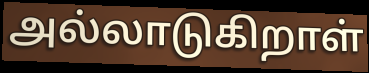
அல்லாடுகிறாள்